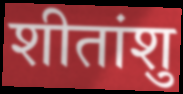
शीतांशु